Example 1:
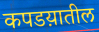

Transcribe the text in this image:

कपडय़ातील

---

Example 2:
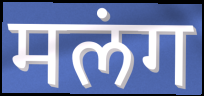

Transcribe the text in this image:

मलंग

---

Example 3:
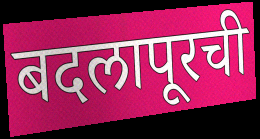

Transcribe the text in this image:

बदलापूरची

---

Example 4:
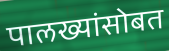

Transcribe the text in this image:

पालख्यांसोबत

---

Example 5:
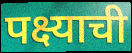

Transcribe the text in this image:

पक्ष्याची